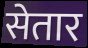
सेतार